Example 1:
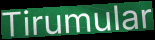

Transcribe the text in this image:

Tirumular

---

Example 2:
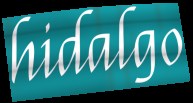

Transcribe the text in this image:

hidalgo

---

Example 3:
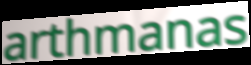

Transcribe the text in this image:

arthmanas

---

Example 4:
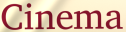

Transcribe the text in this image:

Cinema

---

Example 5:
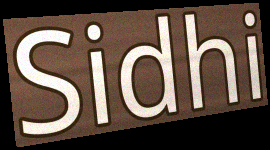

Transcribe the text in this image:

Sidhi